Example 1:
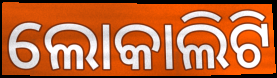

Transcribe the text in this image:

ଲୋକାଲିଟି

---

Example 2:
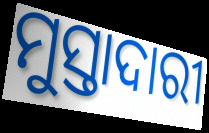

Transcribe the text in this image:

ମୁସ୍ତାଦାରୀ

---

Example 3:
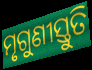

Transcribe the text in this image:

ମୃଗୁଣୀସ୍ତୁତି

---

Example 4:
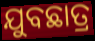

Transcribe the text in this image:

ଯୁବଛାତ୍ର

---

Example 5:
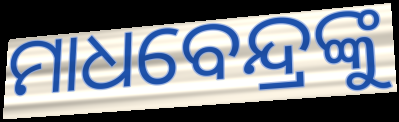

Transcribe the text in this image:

ମାଧବେନ୍ଦ୍ରଙ୍କୁ